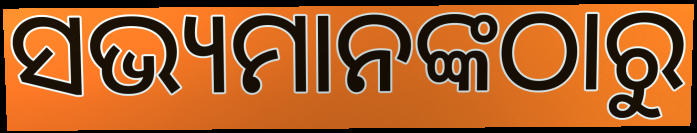
ସଭ୍ୟମାନଙ୍କଠାରୁ